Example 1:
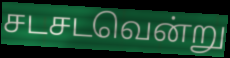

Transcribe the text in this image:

சடசடவென்று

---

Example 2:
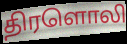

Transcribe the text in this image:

திரளொலி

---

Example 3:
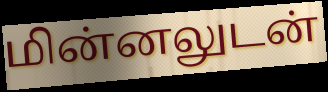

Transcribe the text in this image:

மின்னலுடன்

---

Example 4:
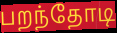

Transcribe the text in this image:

பறந்தோடி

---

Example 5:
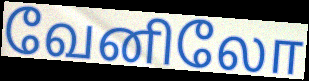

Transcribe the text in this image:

வேனிலோ